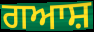
ਗਆਸ਼